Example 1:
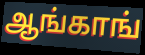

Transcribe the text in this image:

ஆங்காங்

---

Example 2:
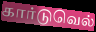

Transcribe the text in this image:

கார்டுவெல்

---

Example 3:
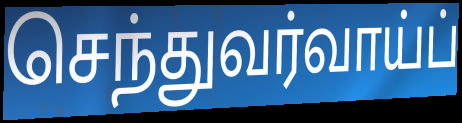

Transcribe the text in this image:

செந்துவர்வாய்ப்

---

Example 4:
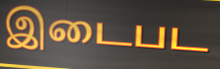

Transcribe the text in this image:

இடைபட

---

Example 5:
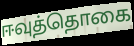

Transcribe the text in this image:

ஈவுத்தொகை